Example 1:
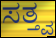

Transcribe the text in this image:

ಸತ್ತ್ವ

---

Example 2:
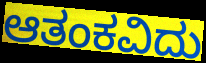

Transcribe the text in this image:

ಆತಂಕವಿದು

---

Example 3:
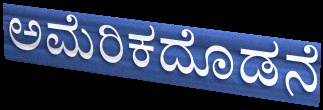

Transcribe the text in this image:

ಅಮೆರಿಕದೊಡನೆ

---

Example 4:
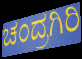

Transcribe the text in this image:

ಚಂದ್ರಗಿರಿ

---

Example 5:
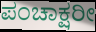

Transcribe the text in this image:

ಪಂಚಾಕ್ಷರೀ